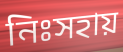
নিঃসহায়